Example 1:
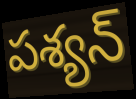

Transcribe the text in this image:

పశ్యన్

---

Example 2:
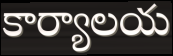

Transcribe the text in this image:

కార్యాలయ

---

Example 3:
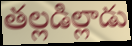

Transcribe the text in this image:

తల్లడిల్లాడు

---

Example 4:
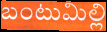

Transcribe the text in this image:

బంటుమిల్లి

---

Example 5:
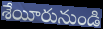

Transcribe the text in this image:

శేయీరునుండి